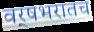
वर्षभरातच